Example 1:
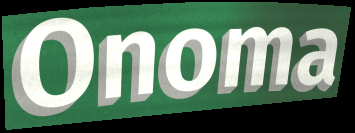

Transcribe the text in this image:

Onoma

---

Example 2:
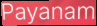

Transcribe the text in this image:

Payanam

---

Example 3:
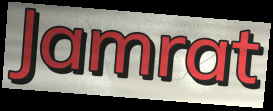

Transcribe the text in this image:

Jamrat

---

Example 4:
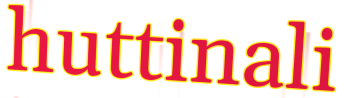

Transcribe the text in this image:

huttinali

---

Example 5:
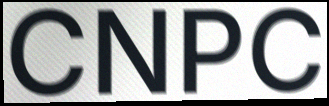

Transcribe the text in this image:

CNPC